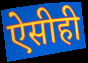
ऐसीही